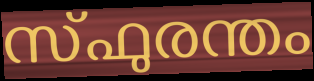
സ്ഫുരന്തം